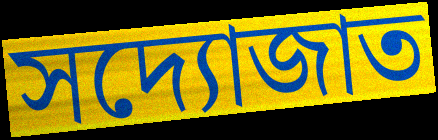
সদ্যোজাত